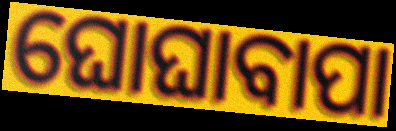
ଘୋଘାବାପା